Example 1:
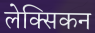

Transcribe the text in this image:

लेक्सिकन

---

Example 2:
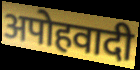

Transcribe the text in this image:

अपोहवादी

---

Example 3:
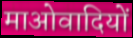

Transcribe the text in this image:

माओवादियों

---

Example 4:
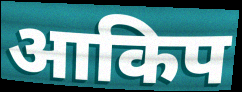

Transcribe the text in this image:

आकिप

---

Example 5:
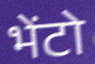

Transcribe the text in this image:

भेंटो